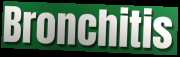
Bronchitis